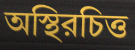
অস্থিরচিত্ত